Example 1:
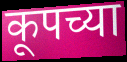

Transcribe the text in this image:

कूपच्या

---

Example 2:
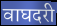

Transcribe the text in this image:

वाघदरी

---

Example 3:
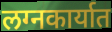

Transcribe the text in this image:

लग्नकार्यात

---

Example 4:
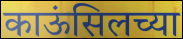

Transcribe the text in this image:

काऊंसिलच्या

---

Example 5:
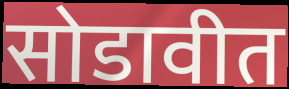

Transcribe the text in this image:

सोडावीत